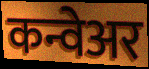
कन्वेअर